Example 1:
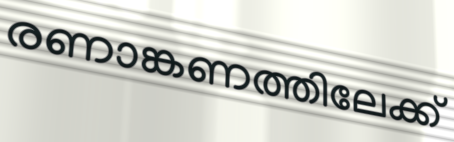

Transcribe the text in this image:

രണാങ്കണത്തിലേക്ക്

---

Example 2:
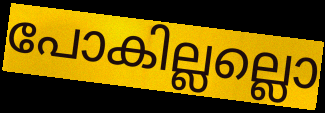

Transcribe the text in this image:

പോകില്ലല്ലൊ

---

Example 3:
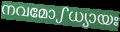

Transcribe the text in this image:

നവമോഽധ്യായഃ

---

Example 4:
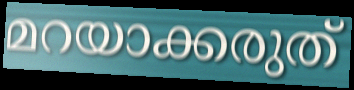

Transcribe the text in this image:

മറയാക്കരുത്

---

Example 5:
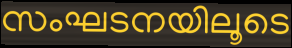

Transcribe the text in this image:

സംഘടനയിലൂടെ